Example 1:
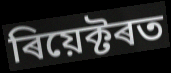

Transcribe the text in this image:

ৰিয়েক্টৰত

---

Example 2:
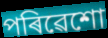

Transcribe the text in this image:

পৰিৱেশো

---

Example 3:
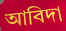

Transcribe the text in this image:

আবিদা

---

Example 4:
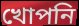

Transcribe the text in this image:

খোপনি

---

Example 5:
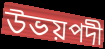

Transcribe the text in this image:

উভয়পদী